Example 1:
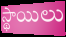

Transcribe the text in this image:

స్థాయిలు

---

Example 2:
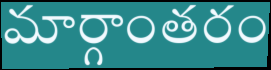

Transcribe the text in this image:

మార్గాంతరం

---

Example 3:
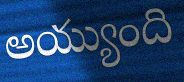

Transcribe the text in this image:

అయ్యుంది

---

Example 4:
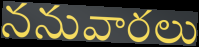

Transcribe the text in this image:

ననువారలు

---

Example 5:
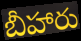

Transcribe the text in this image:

బీహారు